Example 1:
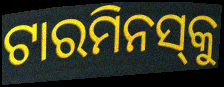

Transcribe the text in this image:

ଟାରମିନସ୍‌କୁ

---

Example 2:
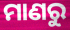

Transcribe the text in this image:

ମାଣରୁ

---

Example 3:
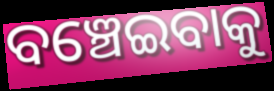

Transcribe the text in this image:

ବଞ୍ଚେଇବାକୁ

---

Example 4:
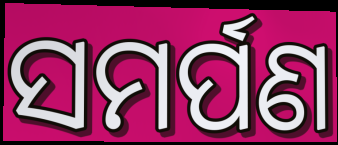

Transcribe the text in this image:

ସମର୍ପଣ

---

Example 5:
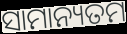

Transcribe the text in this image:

ସାମାନ୍ୟତମ